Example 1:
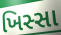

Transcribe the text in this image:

ખિસ્સા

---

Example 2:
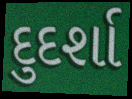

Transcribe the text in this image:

દુદર્શા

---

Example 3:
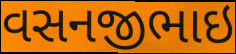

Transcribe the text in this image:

વસનજીભાઇ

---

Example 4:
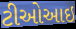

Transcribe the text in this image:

ટીઓઆઇ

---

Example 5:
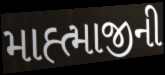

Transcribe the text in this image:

માહ્ત્માજીની